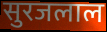
सुरजलाल